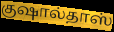
குஷால்தாஸ்